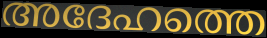
അദേഹത്തെ